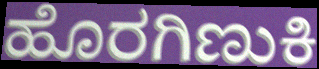
ಹೊರಗಿಣುಕಿ